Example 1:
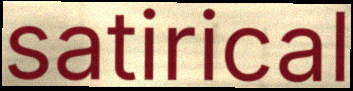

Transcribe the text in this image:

satirical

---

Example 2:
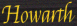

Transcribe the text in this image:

Howarth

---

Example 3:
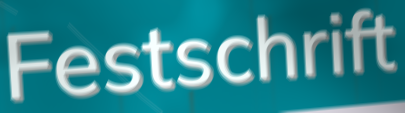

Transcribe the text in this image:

Festschrift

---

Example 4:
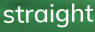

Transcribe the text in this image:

straight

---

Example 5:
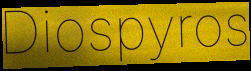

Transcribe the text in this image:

Diospyros